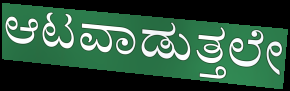
ಆಟವಾಡುತ್ತಲೇ